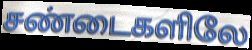
சண்டைகளிலே